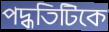
পদ্ধতিটিকে